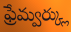
ఫ్రేమ్వర్క్లు